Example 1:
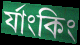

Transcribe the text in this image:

র্যাংকিং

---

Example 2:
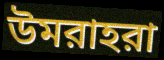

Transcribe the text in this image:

উমরাহরা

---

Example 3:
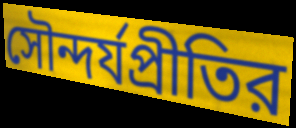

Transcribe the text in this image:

সৌন্দর্যপ্রীতির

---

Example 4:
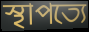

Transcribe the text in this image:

স্থাপত্যে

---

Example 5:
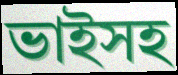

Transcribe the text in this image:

ভাইসহ